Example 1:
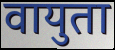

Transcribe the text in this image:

वायुता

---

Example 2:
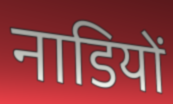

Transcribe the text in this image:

नाडियों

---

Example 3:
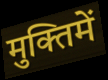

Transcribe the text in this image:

मुक्तिमें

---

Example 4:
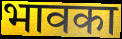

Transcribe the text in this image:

भावका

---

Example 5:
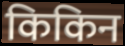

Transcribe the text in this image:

किकिन